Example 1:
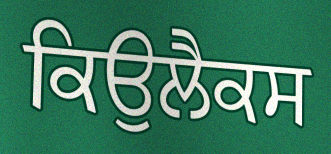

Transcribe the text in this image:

ਕਿਉਲੈਕਸ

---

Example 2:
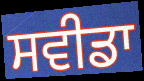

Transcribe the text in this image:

ਸਵੀਡਾ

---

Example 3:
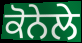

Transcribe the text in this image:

ਕੋਨੇਲੇ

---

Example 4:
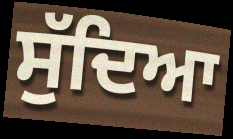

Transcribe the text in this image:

ਸੁੱਦਿਆ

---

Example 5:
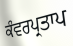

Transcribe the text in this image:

ਕੰਵਰਪ੍ਰਤਾਪ